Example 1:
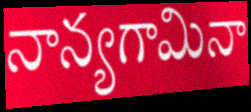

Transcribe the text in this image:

నాన్యగామినా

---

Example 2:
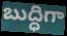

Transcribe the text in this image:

బుద్ధిగా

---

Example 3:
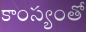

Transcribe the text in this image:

కాంస్యంతో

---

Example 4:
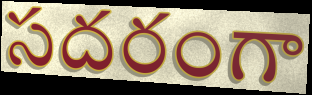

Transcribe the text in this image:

సదరంగా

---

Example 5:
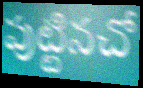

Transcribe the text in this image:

పుట్టినచో